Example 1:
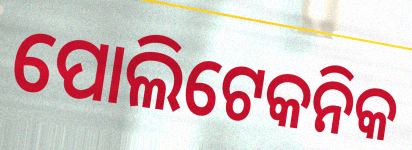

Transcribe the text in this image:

ପୋଲିଟେକନିକ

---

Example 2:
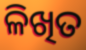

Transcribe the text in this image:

ଳିଖିତ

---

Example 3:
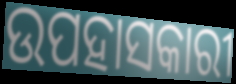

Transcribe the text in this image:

ଉପହାସକାରୀ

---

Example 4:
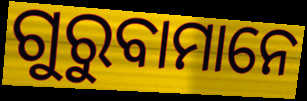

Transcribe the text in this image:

ଗୁରୁବାମାନେ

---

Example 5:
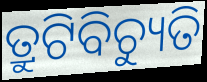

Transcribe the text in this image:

ତ୍ରୁଟିବିଚ୍ୟୁତି